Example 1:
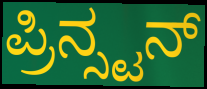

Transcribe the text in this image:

ಪ್ರಿನ್ಸ್ಟನ್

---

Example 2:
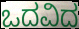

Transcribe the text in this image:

ಒದವಿದ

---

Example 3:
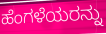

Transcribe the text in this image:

ಹೆಂಗಳೆಯರನ್ನು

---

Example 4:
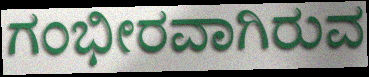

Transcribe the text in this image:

ಗಂಭೀರವಾಗಿರುವ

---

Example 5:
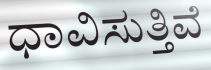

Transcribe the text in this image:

ಧಾವಿಸುತ್ತಿವೆ